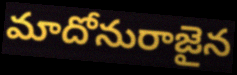
మాదోనురాజైన